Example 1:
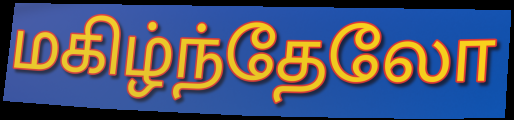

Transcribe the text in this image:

மகிழ்ந்தேலோ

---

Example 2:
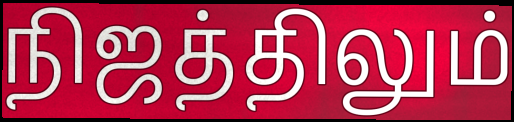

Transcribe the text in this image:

நிஜத்திலும்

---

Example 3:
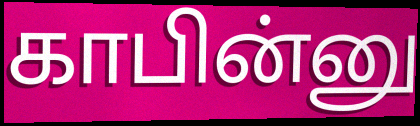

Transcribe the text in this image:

காபின்னு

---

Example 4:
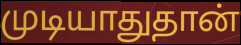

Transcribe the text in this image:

முடியாதுதான்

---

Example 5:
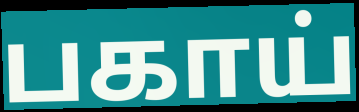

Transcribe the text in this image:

பகாய்